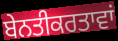
ਬੇਨਤੀਕਰਤਾਵਾਂ